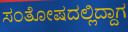
ಸಂತೋಷದಲ್ಲಿದ್ದಾಗ